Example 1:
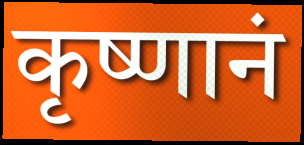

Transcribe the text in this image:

कृष्णानं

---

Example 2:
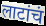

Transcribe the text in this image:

लाटांचं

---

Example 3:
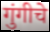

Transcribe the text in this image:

गुंगीचे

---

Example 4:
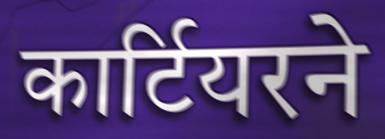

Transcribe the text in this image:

कार्टियरने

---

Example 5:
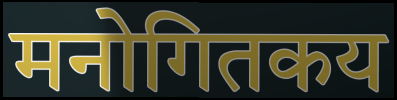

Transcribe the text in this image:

मनोगितकय